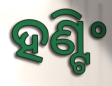
ହଣ୍ଟିଂ